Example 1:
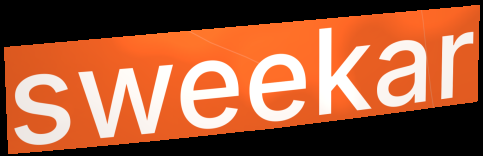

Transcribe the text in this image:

sweekar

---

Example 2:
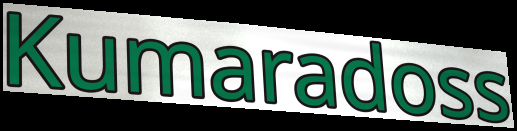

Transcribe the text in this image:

Kumaradoss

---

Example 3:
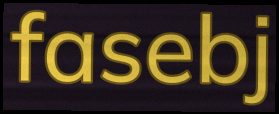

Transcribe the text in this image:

fasebj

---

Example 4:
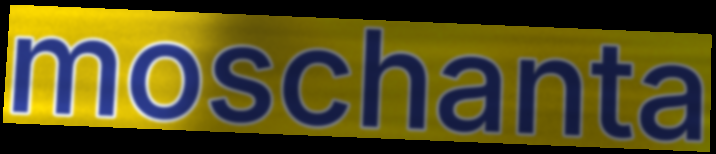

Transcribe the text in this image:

moschanta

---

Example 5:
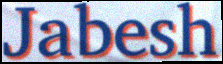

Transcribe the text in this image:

Jabesh